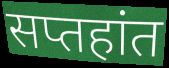
सप्तहांत